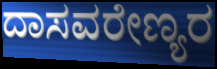
ದಾಸವರೇಣ್ಯರ